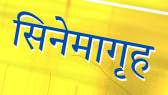
सिनेमागृह